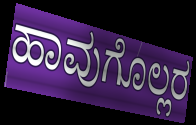
ಹಾವುಗೊಲ್ಲರ